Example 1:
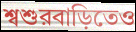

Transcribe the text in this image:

শ্বশুরবাড়িতেও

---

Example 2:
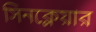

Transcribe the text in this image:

সিনক্লেয়ার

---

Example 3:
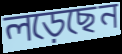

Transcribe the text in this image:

লড়েছেন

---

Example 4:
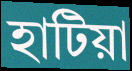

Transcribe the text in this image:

হাটিয়া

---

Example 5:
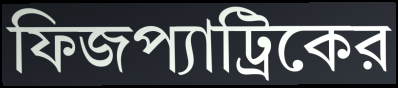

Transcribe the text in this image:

ফিজপ্যাট্রিকের